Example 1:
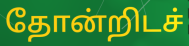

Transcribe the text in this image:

தோன்றிடச்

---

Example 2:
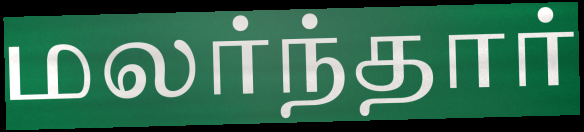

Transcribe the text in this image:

மலர்ந்தார்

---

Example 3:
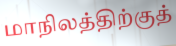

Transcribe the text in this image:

மாநிலத்திற்குத்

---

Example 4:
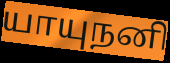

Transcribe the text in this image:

யாயுநனி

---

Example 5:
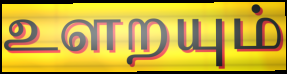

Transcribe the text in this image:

உளறயும்